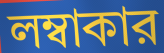
লম্বাকার